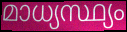
മാധ്യസ്ഥ്യം